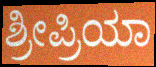
ಶ್ರೀಪ್ರಿಯಾ